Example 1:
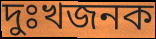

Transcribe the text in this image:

দুঃখজনক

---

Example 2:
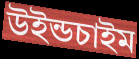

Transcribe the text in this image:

উইন্ডচাইম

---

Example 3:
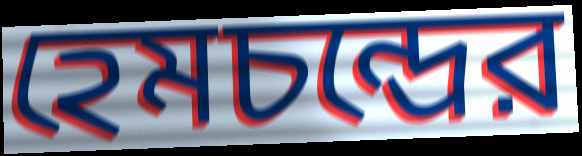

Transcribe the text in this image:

হেমচন্দ্রের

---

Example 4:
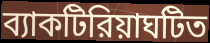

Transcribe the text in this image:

ব্যাকটিরিয়াঘটিত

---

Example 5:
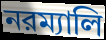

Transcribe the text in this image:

নরম্যালি